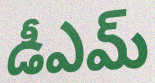
డీఎమ్